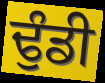
ਢੁੰਡੀ